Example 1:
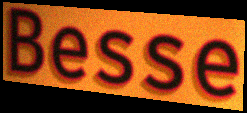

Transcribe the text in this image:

Besse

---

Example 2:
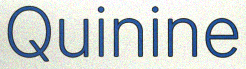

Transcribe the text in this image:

Quinine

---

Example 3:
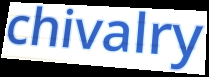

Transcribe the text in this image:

chivalry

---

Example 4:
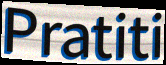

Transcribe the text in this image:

Pratiti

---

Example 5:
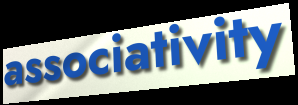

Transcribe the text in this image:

associativity